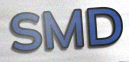
SMD